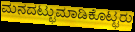
ಮನದಟ್ಟುಮಾಡಿಕೊಟ್ಟರು